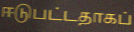
ஈடுபட்டதாகப்